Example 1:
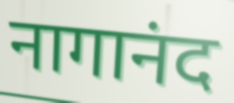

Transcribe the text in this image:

नागानंद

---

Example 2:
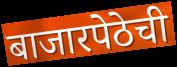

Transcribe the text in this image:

बाजारपेठेची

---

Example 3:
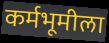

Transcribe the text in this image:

कर्मभूमीला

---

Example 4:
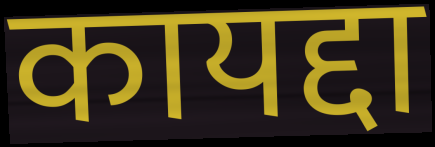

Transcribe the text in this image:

कायद्दा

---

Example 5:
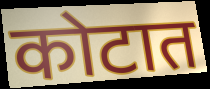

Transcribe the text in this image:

कोटात